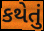
કથેતું